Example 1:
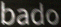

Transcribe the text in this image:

bado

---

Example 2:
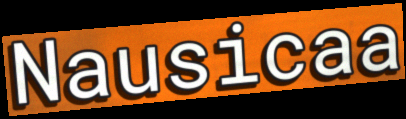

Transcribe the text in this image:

Nausicaa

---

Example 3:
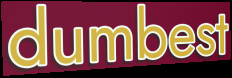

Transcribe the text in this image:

dumbest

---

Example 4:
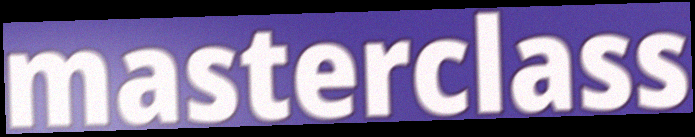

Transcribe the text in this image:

masterclass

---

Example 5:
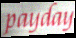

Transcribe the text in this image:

payday